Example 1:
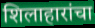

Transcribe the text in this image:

शिलाहारांचा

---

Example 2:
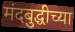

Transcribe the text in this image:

मंदबुद्धीच्या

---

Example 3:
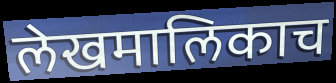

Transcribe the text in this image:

लेखमालिकाच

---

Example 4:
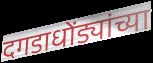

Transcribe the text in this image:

दगडाधोंड्यांच्या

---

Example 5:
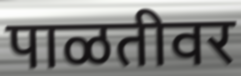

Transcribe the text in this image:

पाळतीवर